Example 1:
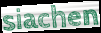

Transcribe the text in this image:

siachen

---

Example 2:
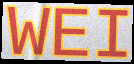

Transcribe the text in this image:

WEI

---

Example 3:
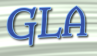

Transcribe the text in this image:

GLA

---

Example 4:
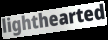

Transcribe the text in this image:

lighthearted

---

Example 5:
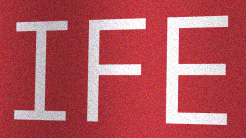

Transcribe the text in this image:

IFE